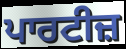
ਪਾਰਟੀਜ਼